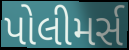
પોલીમર્સ